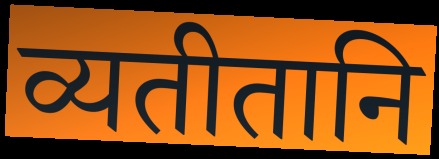
व्यतीतानि